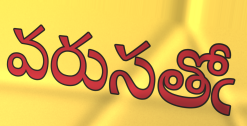
వరుసతోఁ